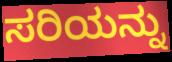
ಸರಿಯನ್ನು